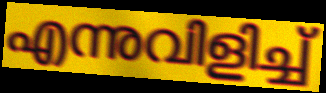
എന്നുവിളിച്ച്